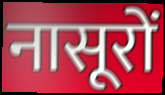
नासूरों